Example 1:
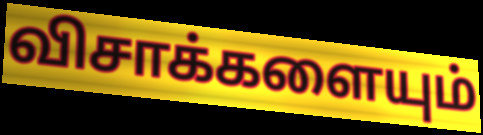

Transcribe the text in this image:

விசாக்களையும்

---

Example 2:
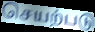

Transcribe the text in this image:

செயற்படு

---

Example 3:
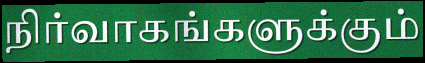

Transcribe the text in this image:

நிர்வாகங்களுக்கும்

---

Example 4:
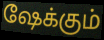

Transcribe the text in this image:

ஷேக்கும்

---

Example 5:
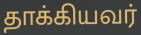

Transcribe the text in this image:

தாக்கியவர்